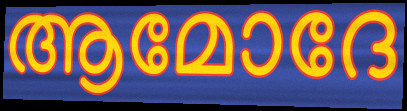
ആമോദേ